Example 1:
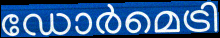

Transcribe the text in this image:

ഡോർമെട്രി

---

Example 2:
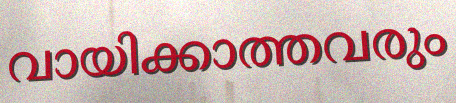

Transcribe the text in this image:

വായിക്കാത്തവരും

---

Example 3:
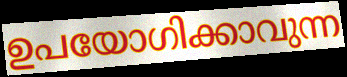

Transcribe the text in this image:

ഉപയോഗിക്കാവുന്ന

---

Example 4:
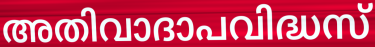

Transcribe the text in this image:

അതിവാദാപവിദ്ധസ്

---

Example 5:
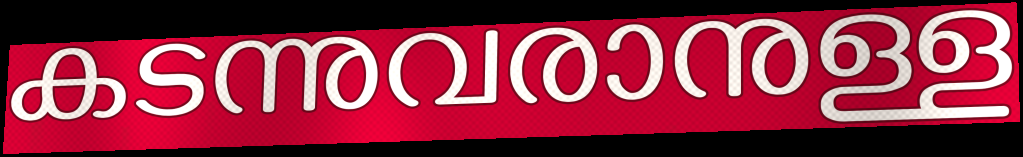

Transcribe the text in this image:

കടന്നുവരാനുള്ള